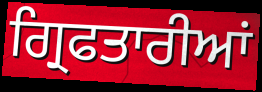
ਗ੍ਰਿਫਤਾਰੀਆਂ